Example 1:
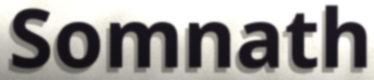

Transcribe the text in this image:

Somnath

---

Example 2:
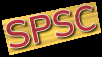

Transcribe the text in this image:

SPSC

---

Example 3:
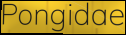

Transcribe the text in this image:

Pongidae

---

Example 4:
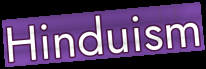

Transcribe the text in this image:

Hinduism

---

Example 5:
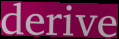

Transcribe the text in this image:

derive